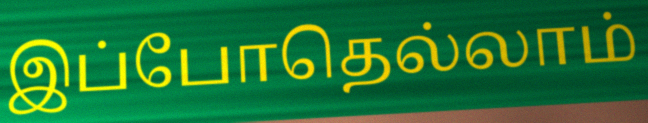
இப்போதெல்லாம்